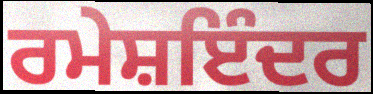
ਰਮੇਸ਼ਇੰਦਰ